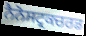
ਨੈਨੋਸਟ੍ਰਕਚਰਡ